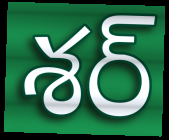
శర్